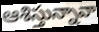
ఆశిస్తున్నావా